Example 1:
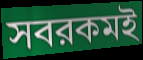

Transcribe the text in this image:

সবরকমই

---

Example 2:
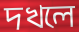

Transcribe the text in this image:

দখলে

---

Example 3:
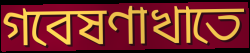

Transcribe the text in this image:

গবেষণাখাতে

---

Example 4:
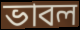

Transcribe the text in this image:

ভাবল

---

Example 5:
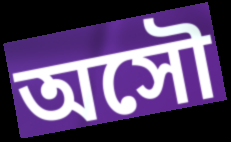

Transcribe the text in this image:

অসৌ